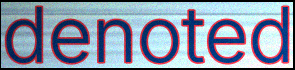
denoted